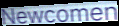
Newcomen